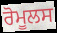
ਰੋਮੂਲਸ